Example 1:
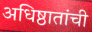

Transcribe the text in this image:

अधिष्ठातांची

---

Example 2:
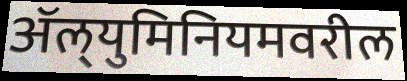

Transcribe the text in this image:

ॲल्युमिनियमवरील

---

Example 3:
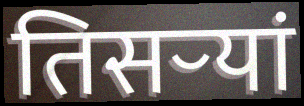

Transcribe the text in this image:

तिसऱ्यां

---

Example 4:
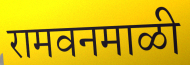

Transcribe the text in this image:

रामवनमाळी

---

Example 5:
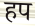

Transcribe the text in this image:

हप